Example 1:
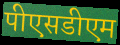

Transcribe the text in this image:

पीएसडीएम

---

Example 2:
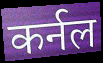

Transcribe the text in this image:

कर्नल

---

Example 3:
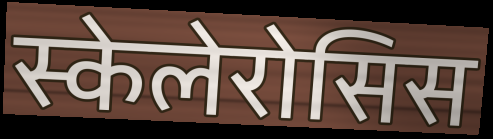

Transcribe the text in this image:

स्केलेरोसिस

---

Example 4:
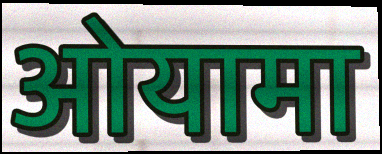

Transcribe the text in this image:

ओयामा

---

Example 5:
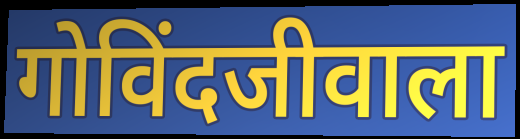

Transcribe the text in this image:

गोविंदजीवाला